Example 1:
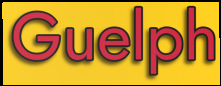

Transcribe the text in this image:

Guelph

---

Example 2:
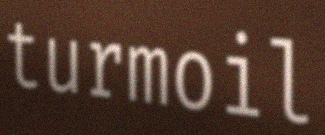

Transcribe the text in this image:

turmoil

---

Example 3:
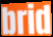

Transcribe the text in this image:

brid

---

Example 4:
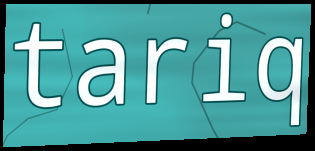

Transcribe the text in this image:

tariq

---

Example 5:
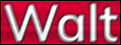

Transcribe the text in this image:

Walt